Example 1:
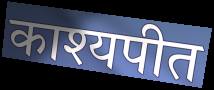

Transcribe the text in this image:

काश्यपीत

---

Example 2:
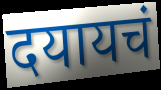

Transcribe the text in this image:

दयायचं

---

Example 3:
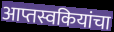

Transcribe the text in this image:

आप्तस्वकियांचा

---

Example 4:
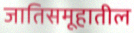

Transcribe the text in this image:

जातिसमूहातील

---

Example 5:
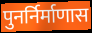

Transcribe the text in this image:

पुनर्निर्माणास